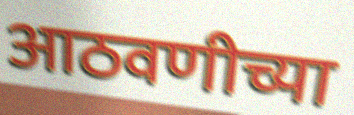
आठवणीच्या